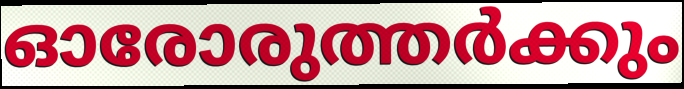
ഓരോരുത്തർക്കും